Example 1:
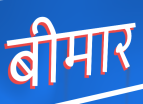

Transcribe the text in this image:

बीमार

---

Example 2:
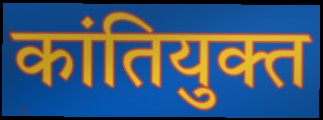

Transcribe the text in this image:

कांतियुक्त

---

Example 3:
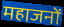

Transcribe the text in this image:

महाजनों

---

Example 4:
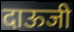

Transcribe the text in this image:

दाऊजी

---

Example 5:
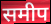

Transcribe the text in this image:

समीप